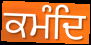
ਕਮੰਦਿ